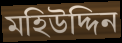
মহিউদ্দিন